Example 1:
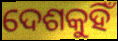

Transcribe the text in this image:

ଦେଶକୁହିଁ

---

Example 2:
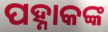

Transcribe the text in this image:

ପହ୍ନାକଙ୍କ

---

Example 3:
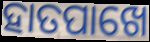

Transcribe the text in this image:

ହାତପାଖେ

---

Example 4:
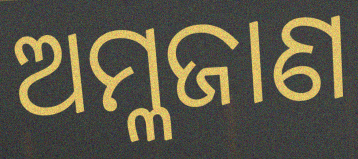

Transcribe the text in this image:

ଅମ୍ଳଜାଣ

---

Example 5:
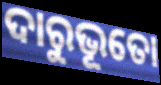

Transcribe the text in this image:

ଦାରୁଭୂତୋ